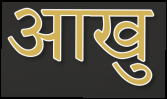
आखु